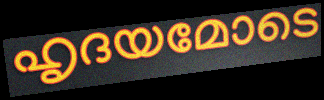
ഹൃദയമോടെ